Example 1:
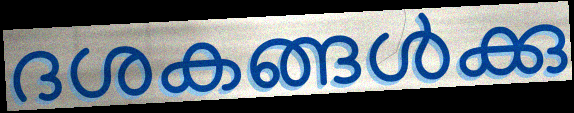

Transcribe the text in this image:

ദശകങ്ങൾക്കു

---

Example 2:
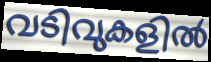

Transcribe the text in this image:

വടിവുകളിൽ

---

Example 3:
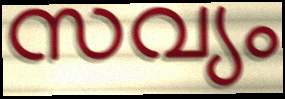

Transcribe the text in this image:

സവ്യം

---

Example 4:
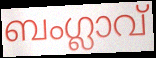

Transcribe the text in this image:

ബംഗ്ലാവ്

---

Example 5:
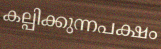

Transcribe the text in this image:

കല്പിക്കുന്നപക്ഷം